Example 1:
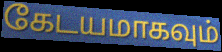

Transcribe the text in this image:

கேடயமாகவும்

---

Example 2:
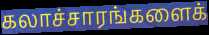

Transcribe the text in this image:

கலாச்சாரங்களைக்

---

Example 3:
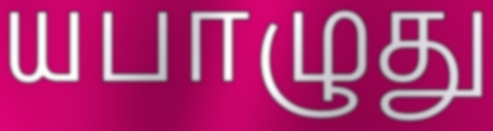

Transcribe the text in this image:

யபாழுது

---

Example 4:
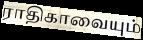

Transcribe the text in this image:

ராதிகாவையும்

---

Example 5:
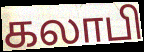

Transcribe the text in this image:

கலாபி